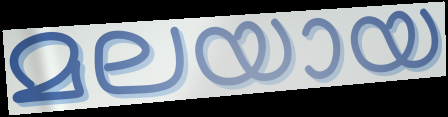
മലയായ